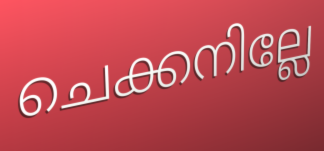
ചെക്കനില്ലേ